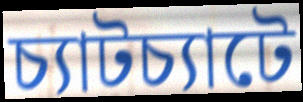
চ্যাটচ্যাটে